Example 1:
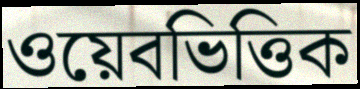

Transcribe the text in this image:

ওয়েবভিত্তিক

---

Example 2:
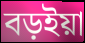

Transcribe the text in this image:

বড়ইয়া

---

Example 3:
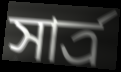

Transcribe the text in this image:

সার্ত্র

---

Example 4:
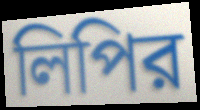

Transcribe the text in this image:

লিপির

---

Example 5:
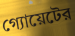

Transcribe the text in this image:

গ্যোয়েটের